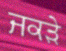
ਜਕੜੇ